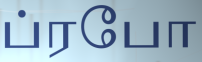
ப்ரபோ